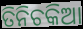
ତିନିଚକିଆ